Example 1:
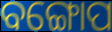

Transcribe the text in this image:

ବଙ୍ଗୋପ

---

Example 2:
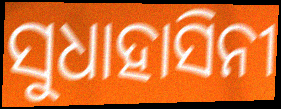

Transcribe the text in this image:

ସୁଧାହାସିନୀ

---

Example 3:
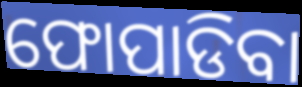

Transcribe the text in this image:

ଫୋପାଡିବା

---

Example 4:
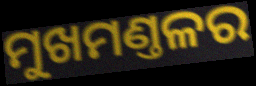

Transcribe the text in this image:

ମୁଖମଣ୍ତଳର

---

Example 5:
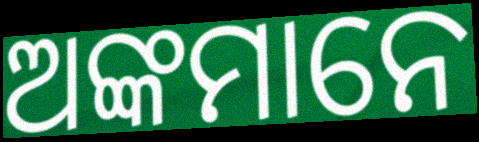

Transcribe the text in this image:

ଅଙ୍କମାନେ